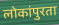
लोकांपुरता